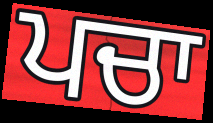
ਪਚਾ